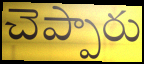
చెప్పారు